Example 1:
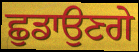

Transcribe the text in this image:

ਛੁਡਾਉਣਗੇ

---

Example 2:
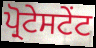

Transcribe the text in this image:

ਪ੍ਰੋਟੇਸਟੇਂਟ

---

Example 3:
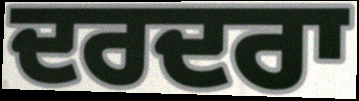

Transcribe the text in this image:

ਦਰਦਰਾ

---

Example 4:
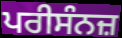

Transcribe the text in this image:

ਪਰੀਸੰਨਜ਼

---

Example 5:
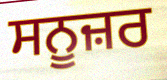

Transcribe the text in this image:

ਸਨੂਜ਼ਰ